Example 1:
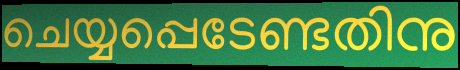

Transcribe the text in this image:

ചെയ്യപ്പെടേണ്ടതിനു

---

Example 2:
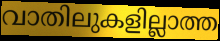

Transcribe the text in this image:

വാതിലുകളില്ലാത്ത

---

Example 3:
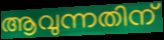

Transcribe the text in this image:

ആവുന്നതിന്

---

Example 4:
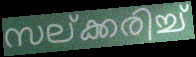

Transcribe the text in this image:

സല്ക്കരിച്ച്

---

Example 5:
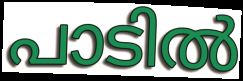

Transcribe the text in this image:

പാടിൽ